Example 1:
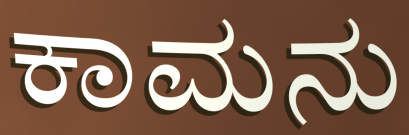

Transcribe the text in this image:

ಕಾಮನು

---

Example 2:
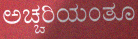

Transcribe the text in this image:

ಅಚ್ಚರಿಯಂತೂ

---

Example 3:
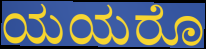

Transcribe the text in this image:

ಯಯರೊ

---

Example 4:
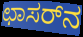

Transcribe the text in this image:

ಛಾಸರ್‌ನ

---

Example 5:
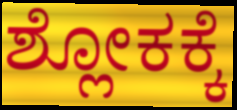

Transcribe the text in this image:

ಶ್ಲೋಕಕ್ಕೆ